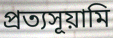
প্রত্যসূয়ামি